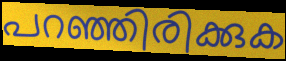
പറഞ്ഞിരിക്കുക